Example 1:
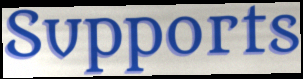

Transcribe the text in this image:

Supports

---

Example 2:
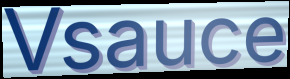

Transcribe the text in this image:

Vsauce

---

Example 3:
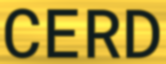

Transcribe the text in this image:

CERD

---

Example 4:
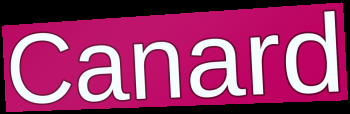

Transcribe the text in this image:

Canard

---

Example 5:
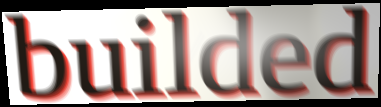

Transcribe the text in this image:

builded